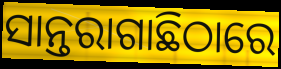
ସାନ୍ତରାଗାଛିଠାରେ